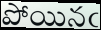
పోయినఁ